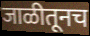
जाळीतूनच